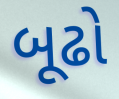
બૂઢો